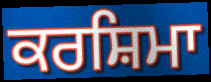
ਕਰਸ਼ਿਮਾ